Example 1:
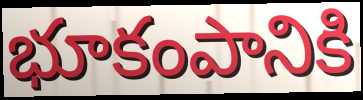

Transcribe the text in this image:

భూకంపానికి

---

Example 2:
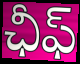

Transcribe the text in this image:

ఛీఫ్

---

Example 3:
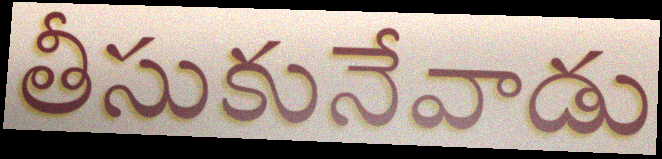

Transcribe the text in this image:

తీసుకునేవాడు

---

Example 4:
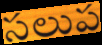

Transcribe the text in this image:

సలుప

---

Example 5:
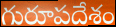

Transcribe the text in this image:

గురూపదేశం